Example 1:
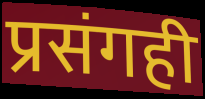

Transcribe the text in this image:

प्रसंगही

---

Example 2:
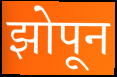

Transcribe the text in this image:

झोपून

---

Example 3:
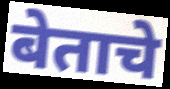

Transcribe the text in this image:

बेताचे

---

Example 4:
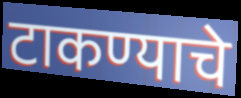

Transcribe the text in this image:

टाकण्याचे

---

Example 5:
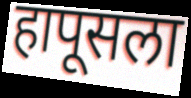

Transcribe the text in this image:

हापूसला